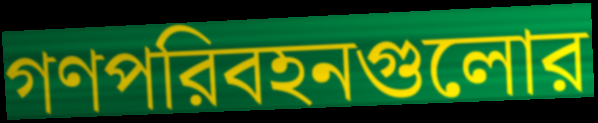
গণপরিবহনগুলোর